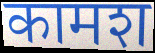
कामश